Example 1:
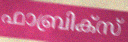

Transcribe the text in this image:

ഫാബ്രിക്സ്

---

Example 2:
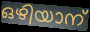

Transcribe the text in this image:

ഒഴിയാന്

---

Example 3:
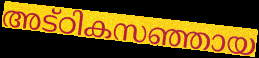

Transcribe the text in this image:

അട്ഠികസഞ്ഞായ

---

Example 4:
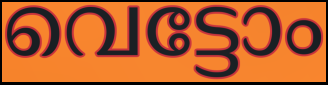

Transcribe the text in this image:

വെട്ടോം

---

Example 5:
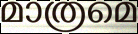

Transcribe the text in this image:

മാത്രമെ